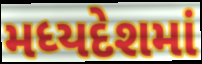
મધ્યદેશમાં